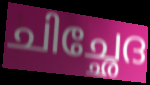
ചിച്ഛേദ